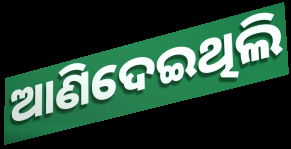
ଆଣିଦେଇଥିଲି